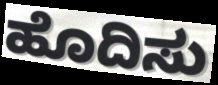
ಹೊದಿಸು